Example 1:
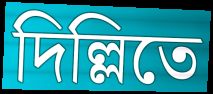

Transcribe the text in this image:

দিল্লিতে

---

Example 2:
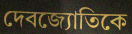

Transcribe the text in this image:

দেবজ্যোতিকে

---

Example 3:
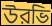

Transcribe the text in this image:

উরভি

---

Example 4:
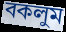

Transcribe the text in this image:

বকলুম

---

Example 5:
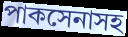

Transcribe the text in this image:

পাকসেনাসহ